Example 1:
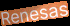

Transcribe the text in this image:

Renesas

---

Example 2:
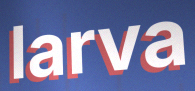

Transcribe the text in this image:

larva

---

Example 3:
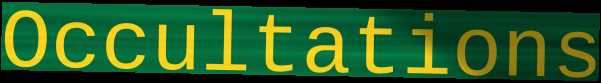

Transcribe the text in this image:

Occultations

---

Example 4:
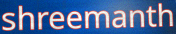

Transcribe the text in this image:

shreemanth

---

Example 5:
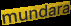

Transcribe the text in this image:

mundara